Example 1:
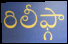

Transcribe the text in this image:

రిలీఫ్గా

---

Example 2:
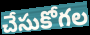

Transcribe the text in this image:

చేసుకోగల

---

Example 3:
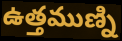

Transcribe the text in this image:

ఉత్తముణ్ని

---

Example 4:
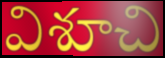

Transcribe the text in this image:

విశూచి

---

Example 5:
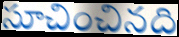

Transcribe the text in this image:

సూచించినది